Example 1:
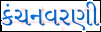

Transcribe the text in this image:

કંચનવરણી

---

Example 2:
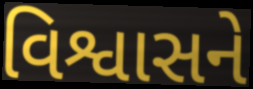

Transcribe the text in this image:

વિશ્વાસને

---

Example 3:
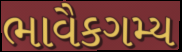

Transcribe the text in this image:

ભાવૈકગમ્ય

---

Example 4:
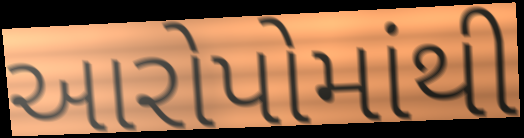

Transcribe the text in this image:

આરોપોમાંથી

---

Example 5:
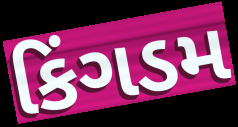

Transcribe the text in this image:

કિંગડમ